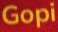
Gopi